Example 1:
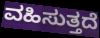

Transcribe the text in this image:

ವಹಿಸುತ್ತದೆ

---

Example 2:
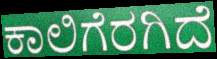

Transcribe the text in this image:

ಕಾಲಿಗೆರಗಿದೆ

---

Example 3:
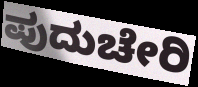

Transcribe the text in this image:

ಪುದುಚೇರಿ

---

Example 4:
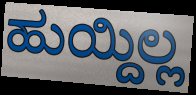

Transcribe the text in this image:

ಹುಯ್ದಿಲ್ಲ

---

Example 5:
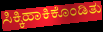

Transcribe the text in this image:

ಸಿಕ್ಕಿಹಾಕಿಕೊಂಡಿತು